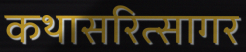
कथासरित्सागर